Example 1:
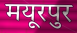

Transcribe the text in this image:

मयूरपुर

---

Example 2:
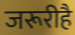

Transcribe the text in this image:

जरूरीहै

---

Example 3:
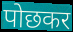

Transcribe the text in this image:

पोछकर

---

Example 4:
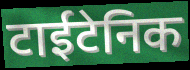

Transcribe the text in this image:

टाईटेनिक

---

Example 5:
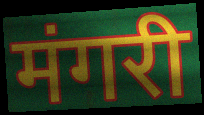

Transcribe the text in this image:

मंगरी